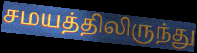
சமயத்திலிருந்து